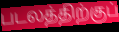
படலத்திற்குப்